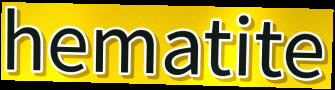
hematite